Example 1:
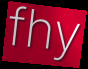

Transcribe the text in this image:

fhy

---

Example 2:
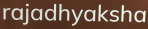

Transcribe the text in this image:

rajadhyaksha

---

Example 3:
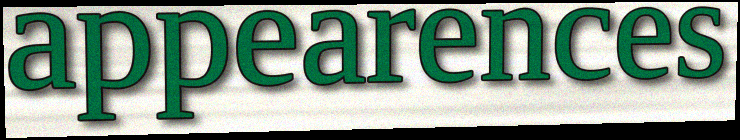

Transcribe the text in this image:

appearences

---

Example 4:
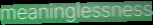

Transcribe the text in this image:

meaninglessness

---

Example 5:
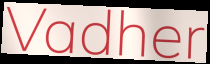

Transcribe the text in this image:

Vadher